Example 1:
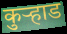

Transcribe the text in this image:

कुऱ्हाड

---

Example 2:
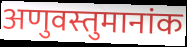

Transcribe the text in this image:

अणुवस्तुमानांक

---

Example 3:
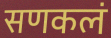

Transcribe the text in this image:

सणकलं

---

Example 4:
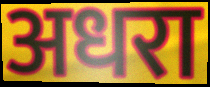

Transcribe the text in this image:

अधरा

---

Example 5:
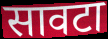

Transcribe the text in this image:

सावटा